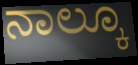
ನಾಲ್ಕೂ